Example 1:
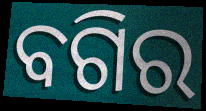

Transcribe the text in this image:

ବଗିର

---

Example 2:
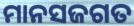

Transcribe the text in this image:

ମାନସଜଗତ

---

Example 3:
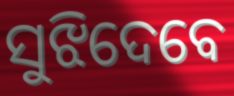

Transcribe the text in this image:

ସୁଝିଦେବେ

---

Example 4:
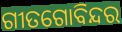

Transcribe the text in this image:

ଗୀତଗୋବିନ୍ଦର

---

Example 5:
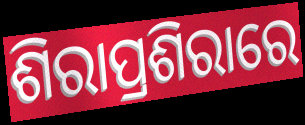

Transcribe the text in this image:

ଶିରାପ୍ରଶିରାରେ